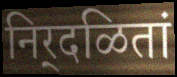
निर्दळितां